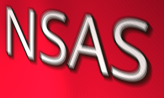
NSAS